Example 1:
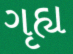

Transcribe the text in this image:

ગૃહ્ય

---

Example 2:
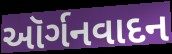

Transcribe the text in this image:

ઑર્ગનવાદન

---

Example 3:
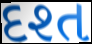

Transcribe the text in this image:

દશ્ત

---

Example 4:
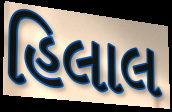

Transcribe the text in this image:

હિલાલ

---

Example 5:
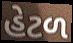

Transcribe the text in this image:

હેટળ